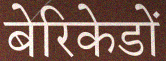
बेरिकेडों